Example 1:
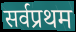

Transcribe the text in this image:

सर्वप्रथम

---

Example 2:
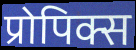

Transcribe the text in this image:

प्रोपिक्स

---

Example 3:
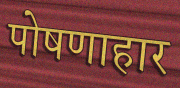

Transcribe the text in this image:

पोषणाहार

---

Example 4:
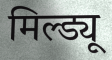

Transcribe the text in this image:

मिल्ड्यू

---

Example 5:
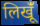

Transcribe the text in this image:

लिखूंँ